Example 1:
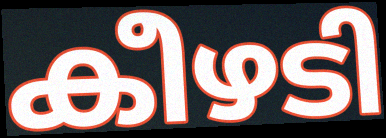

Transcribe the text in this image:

കീഴടി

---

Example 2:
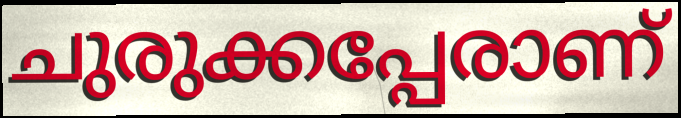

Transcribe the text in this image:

ചുരുക്കപ്പേരാണ്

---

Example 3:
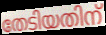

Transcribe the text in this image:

തേടിയതിന്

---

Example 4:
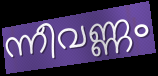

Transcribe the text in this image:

ന്നീവണ്ണം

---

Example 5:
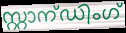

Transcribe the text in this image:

സ്റ്റാന്ഡിംഗ്